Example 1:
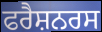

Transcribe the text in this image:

ਫਰੈਸ਼ਨਰਸ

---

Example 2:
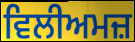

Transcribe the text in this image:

ਵਿਲੀਅਮਜ਼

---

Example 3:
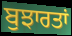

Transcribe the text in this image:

ਬੁਝਾਰਤਾਂ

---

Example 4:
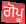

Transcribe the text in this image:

ਗੋਪੂ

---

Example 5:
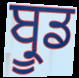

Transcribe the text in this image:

ਬ੍ਰੂਡ